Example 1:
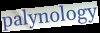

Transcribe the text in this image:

palynology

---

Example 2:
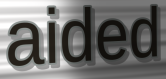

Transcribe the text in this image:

aided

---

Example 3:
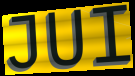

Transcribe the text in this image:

JUI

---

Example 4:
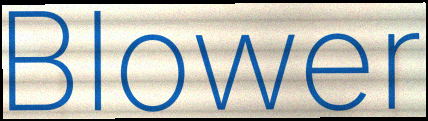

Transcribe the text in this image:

Blower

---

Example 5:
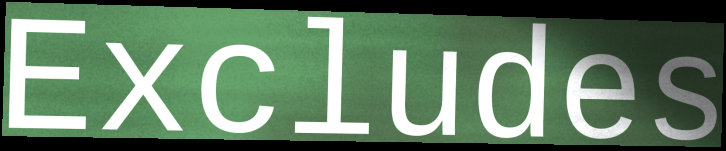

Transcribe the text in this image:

Excludes